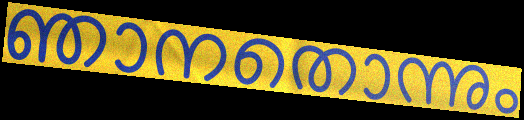
ഞാനതൊന്നും